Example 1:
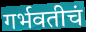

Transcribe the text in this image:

गर्भवतीचं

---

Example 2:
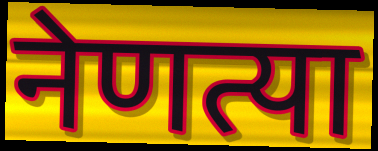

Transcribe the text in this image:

नेणत्या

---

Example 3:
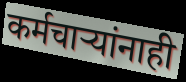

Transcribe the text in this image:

कर्मचाऱ्यांनाही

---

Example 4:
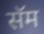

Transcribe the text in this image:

सॅम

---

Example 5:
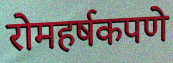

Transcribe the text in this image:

रोमहर्षकपणे